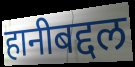
हानीबद्दल